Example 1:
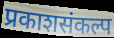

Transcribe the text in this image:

प्रकाशसंकल्प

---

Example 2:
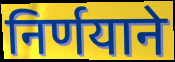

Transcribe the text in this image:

निर्णयाने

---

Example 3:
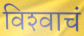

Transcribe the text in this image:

विश्वाचं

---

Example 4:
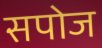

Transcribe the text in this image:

सपोज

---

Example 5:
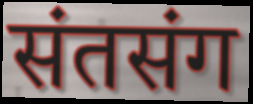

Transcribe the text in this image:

संतसंग